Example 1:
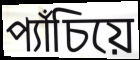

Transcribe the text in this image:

প্যাঁচিয়ে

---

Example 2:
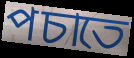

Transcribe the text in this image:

পচাতে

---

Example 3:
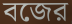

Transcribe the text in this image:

বজের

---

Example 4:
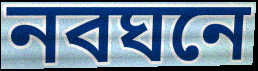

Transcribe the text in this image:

নবঘনে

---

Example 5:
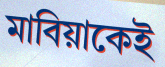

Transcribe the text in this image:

মাবিয়াকেই